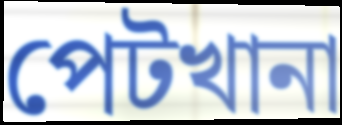
পেটখানা